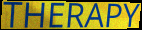
THERAPY